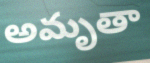
అమృతా